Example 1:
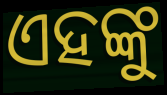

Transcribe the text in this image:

ଏହଙ୍କୁ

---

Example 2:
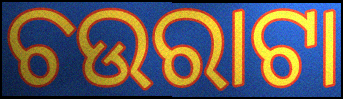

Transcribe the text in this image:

ଚଉରାଟା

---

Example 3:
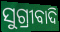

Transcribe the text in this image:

ସୁଗ୍ରୀବାଦି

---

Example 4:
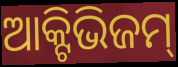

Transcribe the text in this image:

ଆକ୍ଟିଭିଜମ୍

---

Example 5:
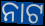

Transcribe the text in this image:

ନାଟ